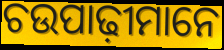
ଚଉପାଢ଼ୀମାନେ